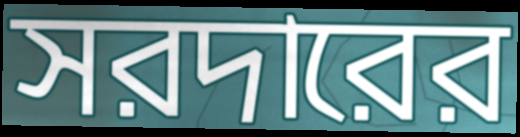
সরদারের